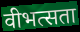
वीभत्सता